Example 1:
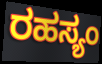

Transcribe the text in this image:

ರಹಸ್ಯಂ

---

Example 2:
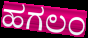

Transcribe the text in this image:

ಹಗಲಂ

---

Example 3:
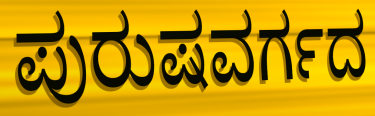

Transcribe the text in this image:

ಪುರುಷವರ್ಗದ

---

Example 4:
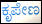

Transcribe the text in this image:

ಕೃಪೇಣ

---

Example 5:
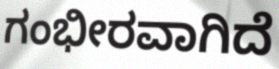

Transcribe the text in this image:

ಗಂಭೀರವಾಗಿದೆ